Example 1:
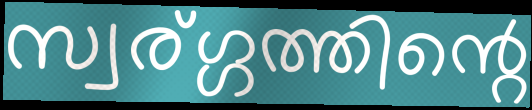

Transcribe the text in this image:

സ്വര്ഗ്ഗത്തിന്റെ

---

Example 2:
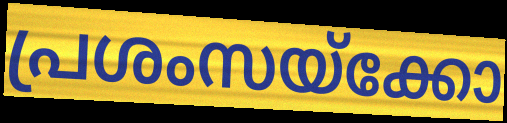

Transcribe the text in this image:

പ്രശംസയ്ക്കോ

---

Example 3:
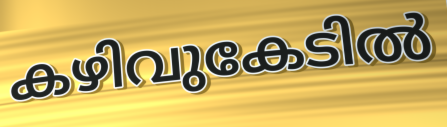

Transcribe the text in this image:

കഴിവുകേടിൽ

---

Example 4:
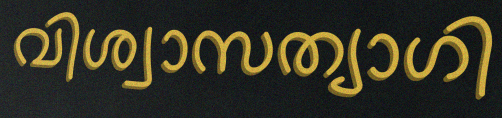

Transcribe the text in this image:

വിശ്വാസത്യാഗി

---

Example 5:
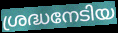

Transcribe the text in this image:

ശ്രദ്ധനേടിയ